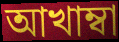
আখাম্বা